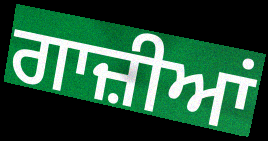
ਗਾਜ਼ੀਆਂ